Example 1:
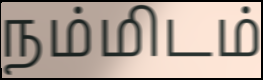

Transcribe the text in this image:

நம்மிடம்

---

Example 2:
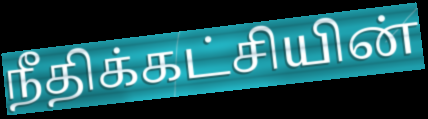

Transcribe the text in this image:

நீதிக்கட்சியின்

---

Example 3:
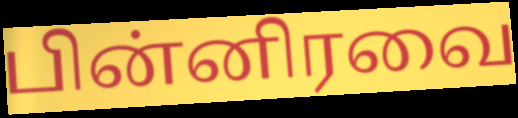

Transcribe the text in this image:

பின்னிரவை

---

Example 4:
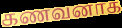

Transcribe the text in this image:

கணவனாக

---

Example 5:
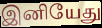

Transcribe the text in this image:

இனியேது